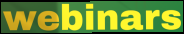
webinars